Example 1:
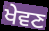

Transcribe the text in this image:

ਖੇਵਣ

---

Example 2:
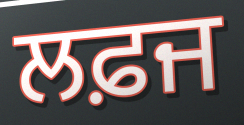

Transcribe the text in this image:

ਲਫ਼ਜ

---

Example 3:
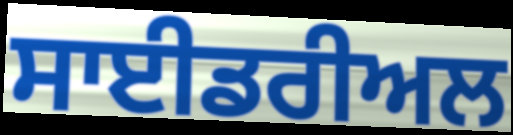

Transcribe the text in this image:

ਸਾਈਡਰੀਅਲ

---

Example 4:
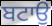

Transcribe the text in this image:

ਬਟਾਉ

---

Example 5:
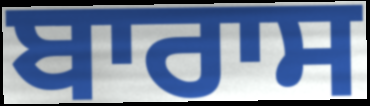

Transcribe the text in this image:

ਬਾਰਾਸ